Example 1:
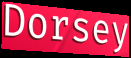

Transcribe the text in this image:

Dorsey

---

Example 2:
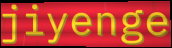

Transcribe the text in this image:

jiyenge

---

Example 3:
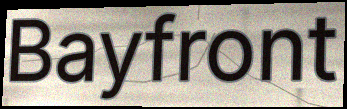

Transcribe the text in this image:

Bayfront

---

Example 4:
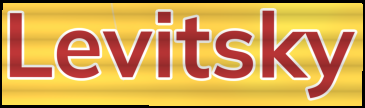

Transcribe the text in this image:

Levitsky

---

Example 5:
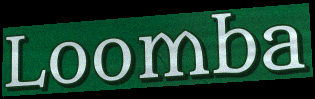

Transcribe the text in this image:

Loomba